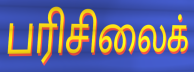
பரிசிலைக்